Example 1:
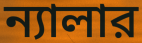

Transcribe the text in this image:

ন্যালার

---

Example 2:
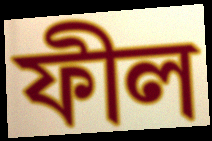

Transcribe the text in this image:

ফীল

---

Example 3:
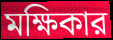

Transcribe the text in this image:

মক্ষিকার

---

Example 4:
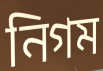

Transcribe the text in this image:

নিগম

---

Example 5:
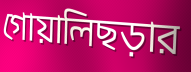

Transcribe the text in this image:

গোয়ালিছড়ার